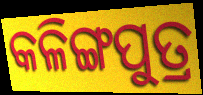
କଳିଙ୍ଗପୁତ୍ର